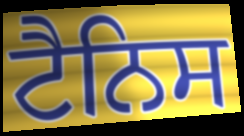
ਟੈਨਿਸ